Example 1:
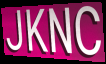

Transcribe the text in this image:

JKNC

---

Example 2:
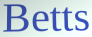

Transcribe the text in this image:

Betts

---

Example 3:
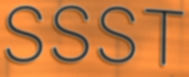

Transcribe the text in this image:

SSST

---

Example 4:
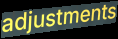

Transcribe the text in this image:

adjustments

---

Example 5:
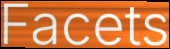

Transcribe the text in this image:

Facets